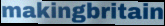
makingbritain